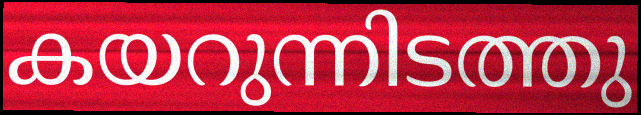
കയറുന്നിടത്തു